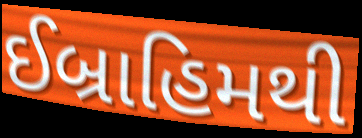
ઈબ્રાહિમથી